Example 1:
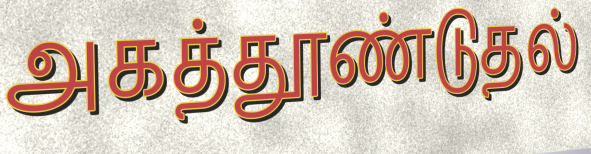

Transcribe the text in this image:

அகத்தூண்டுதல்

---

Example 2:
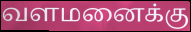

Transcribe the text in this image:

வளமனைக்கு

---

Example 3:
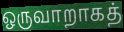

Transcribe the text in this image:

ஒருவாறாகத்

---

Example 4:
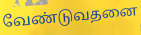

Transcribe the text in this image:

வேண்டுவதனை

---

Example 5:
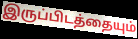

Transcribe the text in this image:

இருப்பிடத்தையும்